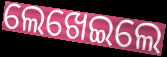
ଲେଖେଇଲେ